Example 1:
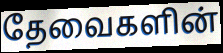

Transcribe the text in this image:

தேவைகளின்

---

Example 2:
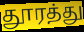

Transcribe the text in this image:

தூரத்து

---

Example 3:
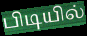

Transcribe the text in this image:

பிடியில்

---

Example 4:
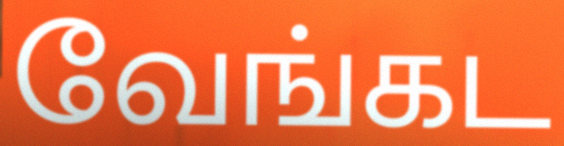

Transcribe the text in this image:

வேங்கட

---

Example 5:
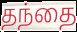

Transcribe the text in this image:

தந்தை